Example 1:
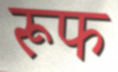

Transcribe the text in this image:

रूफ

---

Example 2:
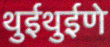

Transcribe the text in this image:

थुईथुईणे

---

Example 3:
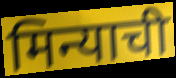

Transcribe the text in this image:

मिन्याची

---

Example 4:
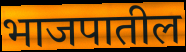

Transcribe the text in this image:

भाजपातील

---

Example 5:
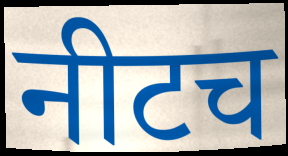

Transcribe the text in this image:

नीटच